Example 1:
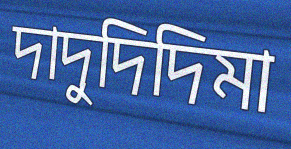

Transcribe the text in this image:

দাদুদিদিমা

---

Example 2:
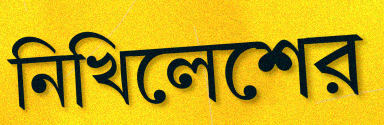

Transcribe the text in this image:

নিখিলেশের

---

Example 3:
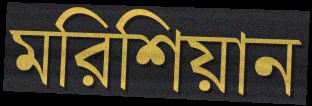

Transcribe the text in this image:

মরিশিয়ান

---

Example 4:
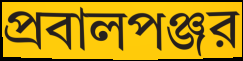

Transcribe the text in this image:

প্রবালপঞ্জর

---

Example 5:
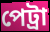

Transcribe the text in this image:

পেট্রা